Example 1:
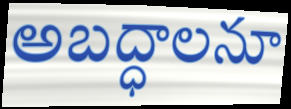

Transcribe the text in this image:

అబద్ధాలనూ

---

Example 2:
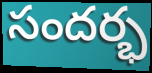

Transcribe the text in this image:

సందర్భ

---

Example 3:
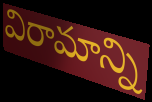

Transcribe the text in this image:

విరామాన్ని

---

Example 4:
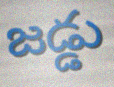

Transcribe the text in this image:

జడ్డు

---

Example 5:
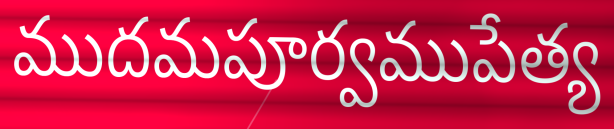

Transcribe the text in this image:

ముదమపూర్వముపేత్య